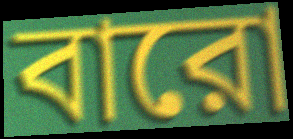
বারো